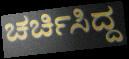
ಚರ್ಚಿಸಿದ್ದ